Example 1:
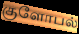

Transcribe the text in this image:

குளோபல்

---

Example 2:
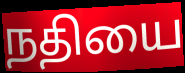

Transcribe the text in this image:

நதியை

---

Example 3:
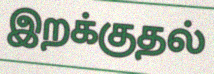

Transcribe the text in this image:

இறக்குதல்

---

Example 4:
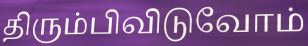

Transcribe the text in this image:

திரும்பிவிடுவோம்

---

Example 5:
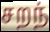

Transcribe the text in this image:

சறந்